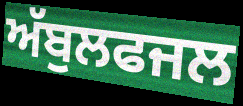
ਅੱਬੁਲਫਜਲ